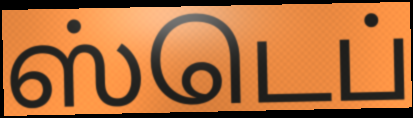
ஸ்டெப்